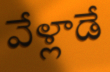
వేళ్లాడే